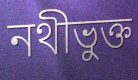
নথীভুক্ত